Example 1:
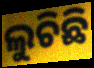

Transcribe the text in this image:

ଲୁଚିଛି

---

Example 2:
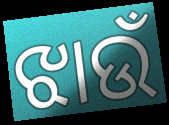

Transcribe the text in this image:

ଝାଉଁ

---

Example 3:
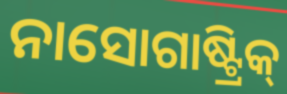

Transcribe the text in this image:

ନାସୋଗାଷ୍ଟ୍ରିକ୍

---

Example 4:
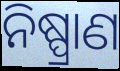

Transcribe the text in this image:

ନିଷ୍ପ୍ରାଣ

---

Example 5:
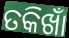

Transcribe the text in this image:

ତକିଖାଁ